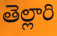
తెల్లారి